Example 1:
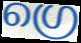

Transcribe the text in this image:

ഗ്രെ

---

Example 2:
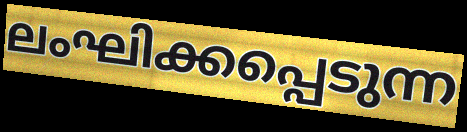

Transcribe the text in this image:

ലംഘിക്കപ്പെടുന്ന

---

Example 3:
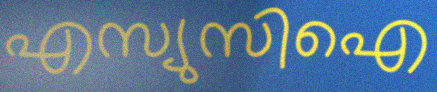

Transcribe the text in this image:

എസ്യുസിഐ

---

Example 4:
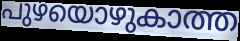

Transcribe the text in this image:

പുഴയൊഴുകാത്ത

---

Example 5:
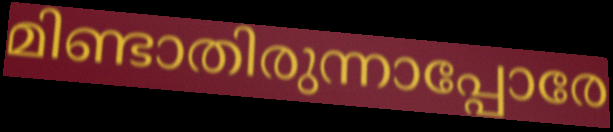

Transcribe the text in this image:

മിണ്ടാതിരുന്നാപ്പോരേ